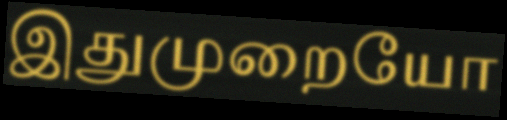
இதுமுறையோ